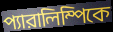
প্যারালিম্পিকে